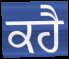
ਕਹੈ